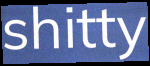
shitty